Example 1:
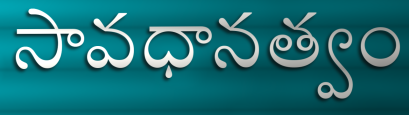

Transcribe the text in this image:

సావధానత్వం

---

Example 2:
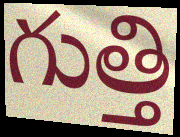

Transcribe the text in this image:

గుత్తి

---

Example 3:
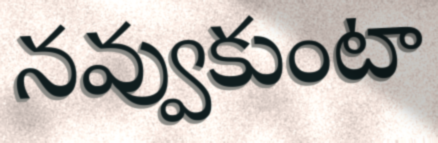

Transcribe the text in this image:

నవ్వుకుంటా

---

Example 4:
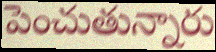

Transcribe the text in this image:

పెంచుతున్నారు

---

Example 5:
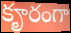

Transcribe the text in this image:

కౄరంగా